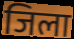
जिला